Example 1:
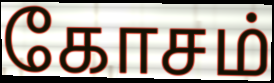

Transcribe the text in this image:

கோசம்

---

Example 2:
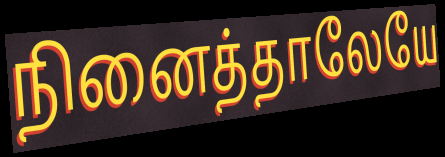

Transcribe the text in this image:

நினைத்தாலேயே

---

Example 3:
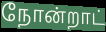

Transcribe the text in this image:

நோன்றாட்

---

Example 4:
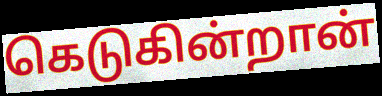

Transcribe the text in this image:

கெடுகின்றான்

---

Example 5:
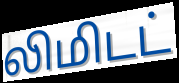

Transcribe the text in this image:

லிமிடட்